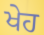
ਖੇਹ